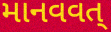
માનવવત્